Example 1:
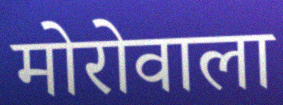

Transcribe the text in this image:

मोरोवाला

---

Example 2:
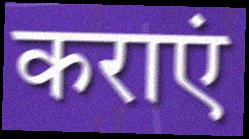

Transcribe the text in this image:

कराएं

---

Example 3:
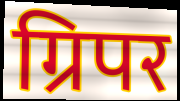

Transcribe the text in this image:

ग्रिपर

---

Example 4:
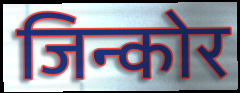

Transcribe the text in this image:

जिन्कोर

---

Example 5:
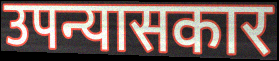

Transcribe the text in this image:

उपन्यासकार